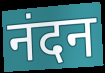
नंदन